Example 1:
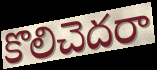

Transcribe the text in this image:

కొలిచెదరా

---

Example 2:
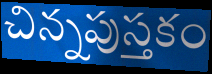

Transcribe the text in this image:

చిన్నపుస్తకం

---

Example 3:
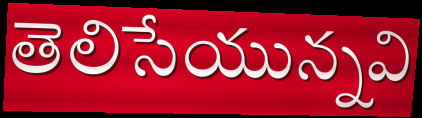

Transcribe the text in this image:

తెలిసేయున్నవి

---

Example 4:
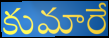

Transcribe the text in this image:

కుమారే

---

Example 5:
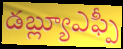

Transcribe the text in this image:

డబ్ల్యూఎఫ్పీ